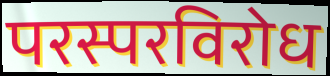
परस्परविरोध